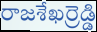
రాజశేఖర్రెడ్డి